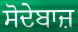
ਸੋਦੇਬਾਜ਼